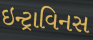
ઇન્ટ્રાવિનસ